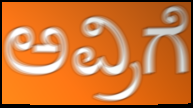
ಅವ್ರಿಗೆ